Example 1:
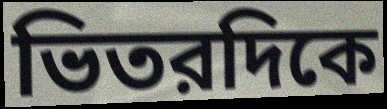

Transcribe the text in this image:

ভিতরদিকে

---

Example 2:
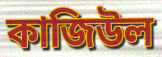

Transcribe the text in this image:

কাজিউল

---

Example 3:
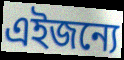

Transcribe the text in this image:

এইজন্যে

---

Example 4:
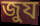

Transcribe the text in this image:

জুয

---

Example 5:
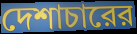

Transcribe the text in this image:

দেশাচারের